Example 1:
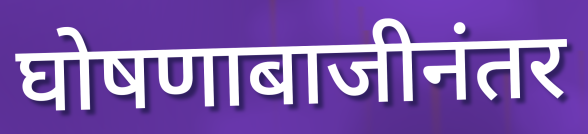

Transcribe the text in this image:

घोषणाबाजीनंतर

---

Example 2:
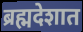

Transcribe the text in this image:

ब्रह्मदेशात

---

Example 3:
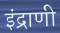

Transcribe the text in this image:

इंद्राणी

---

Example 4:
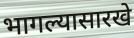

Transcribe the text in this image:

भागल्यासारखे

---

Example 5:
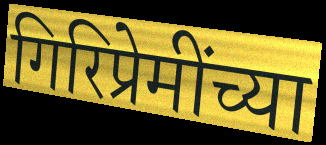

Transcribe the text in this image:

गिरिप्रेमींच्या